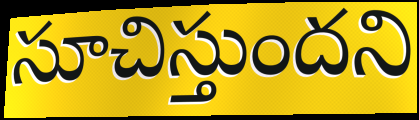
సూచిస్తుందని